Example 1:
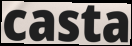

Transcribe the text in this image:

casta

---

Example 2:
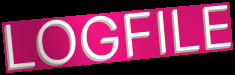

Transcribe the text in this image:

LOGFILE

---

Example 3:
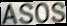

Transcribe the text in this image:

ASOS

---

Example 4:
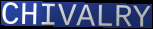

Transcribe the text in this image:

CHIVALRY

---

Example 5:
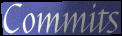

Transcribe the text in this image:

Commits